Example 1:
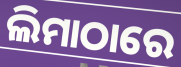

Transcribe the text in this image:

ଲିମାଠାରେ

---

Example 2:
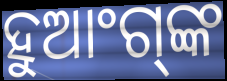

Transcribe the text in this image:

ହୁଆଂଗ୍‍ଙ୍କ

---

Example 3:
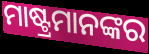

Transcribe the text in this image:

ମାଷ୍ଟ୍ରମାନଙ୍କର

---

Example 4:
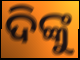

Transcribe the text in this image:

ଦିଙ୍କୁ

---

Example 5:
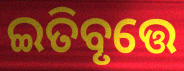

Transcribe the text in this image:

ଇତିବୃତ୍ତେ